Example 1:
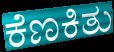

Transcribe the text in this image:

ಕೆಣಕಿತು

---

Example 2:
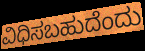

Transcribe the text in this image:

ವಿಧಿಸಬಹುದೆಂದು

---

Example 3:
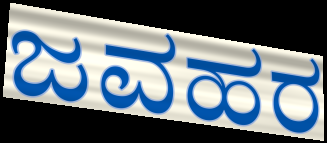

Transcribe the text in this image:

ಜವಹರ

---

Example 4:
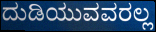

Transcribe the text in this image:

ದುಡಿಯುವವರಲ್ಲ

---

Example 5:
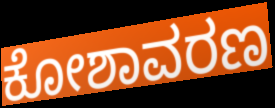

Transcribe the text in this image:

ಕೋಶಾವರಣ